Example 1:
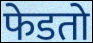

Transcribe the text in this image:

फेडतो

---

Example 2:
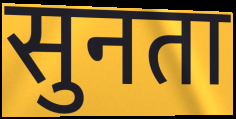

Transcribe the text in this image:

सुनता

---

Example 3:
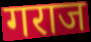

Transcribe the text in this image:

गराज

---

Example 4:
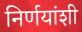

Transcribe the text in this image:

निर्णयांशी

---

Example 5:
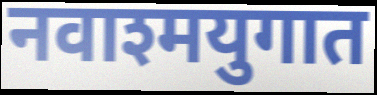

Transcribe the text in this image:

नवाश्मयुगात